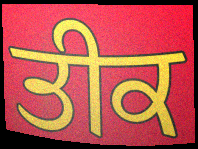
ਤੀਕ